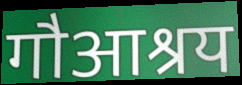
गौआश्रय